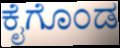
ಕೈಗೊಂಡ